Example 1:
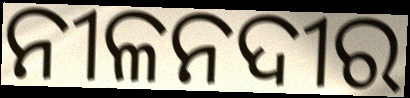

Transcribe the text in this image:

ନୀଳନଦୀର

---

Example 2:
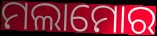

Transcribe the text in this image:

ମଲାମୋର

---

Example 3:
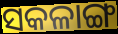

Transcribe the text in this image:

ସକଳାଙ୍ଗ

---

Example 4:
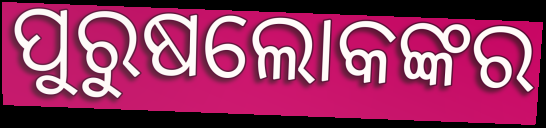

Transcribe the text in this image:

ପୁରୁଷଲୋକଙ୍କର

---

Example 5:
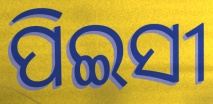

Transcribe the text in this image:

ପିଇସୀ